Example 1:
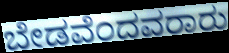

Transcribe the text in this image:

ಬೇಡವೆಂದವರಾರು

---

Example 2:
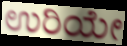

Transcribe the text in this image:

ಉರಿಯೇ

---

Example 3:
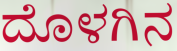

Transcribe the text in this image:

ದೊಳಗಿನ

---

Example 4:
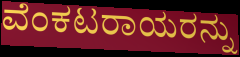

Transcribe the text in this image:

ವೆಂಕಟರಾಯರನ್ನು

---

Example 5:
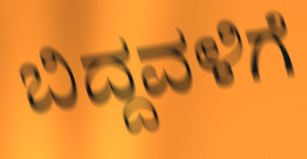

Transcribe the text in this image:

ಬಿದ್ದವಳಿಗೆ